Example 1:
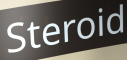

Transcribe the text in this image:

Steroid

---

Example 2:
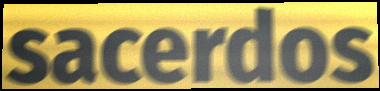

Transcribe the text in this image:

sacerdos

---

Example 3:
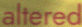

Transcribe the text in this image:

altered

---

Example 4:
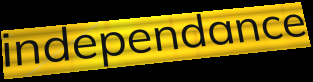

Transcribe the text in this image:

independance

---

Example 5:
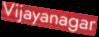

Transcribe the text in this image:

Vijayanagar